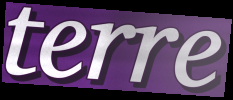
terre